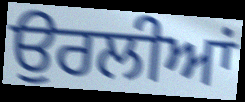
ਉਰਲੀਆਂ